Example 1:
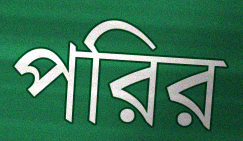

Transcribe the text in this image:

পরির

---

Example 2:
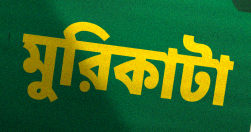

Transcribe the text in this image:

মুরিকাটা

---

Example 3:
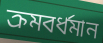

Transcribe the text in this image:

ক্রমবর্ধমান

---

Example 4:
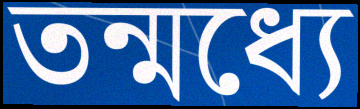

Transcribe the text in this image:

তন্মধ্যে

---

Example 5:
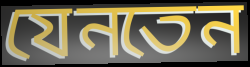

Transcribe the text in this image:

যেনতেন